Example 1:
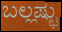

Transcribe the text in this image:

ಬಲ್ಲಷ್ಟು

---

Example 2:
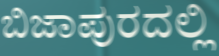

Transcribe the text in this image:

ಬಿಜಾಪುರದಲ್ಲಿ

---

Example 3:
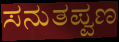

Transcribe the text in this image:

ಸನುತಪ್ವಣ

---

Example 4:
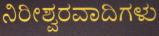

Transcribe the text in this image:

ನಿರೀಶ್ವರವಾದಿಗಳು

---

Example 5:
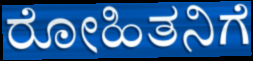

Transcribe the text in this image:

ರೋಹಿತನಿಗೆ